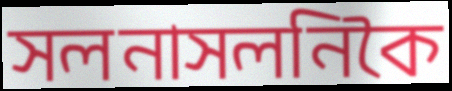
সলনাসলনিকৈ